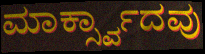
ಮಾರ್ಕ್ಸ್ವಾದವು